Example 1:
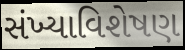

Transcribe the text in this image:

સંખ્યાવિશેષણ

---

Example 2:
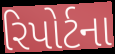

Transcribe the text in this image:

રિપોર્ટના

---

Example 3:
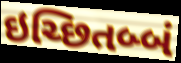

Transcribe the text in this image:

ઇચ્છિતબ્બં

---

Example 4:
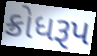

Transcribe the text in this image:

ક્રોધરૂપ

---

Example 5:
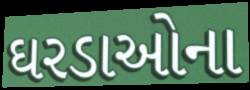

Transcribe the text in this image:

ઘરડાઓના